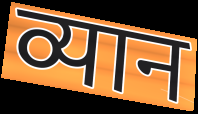
व्यान